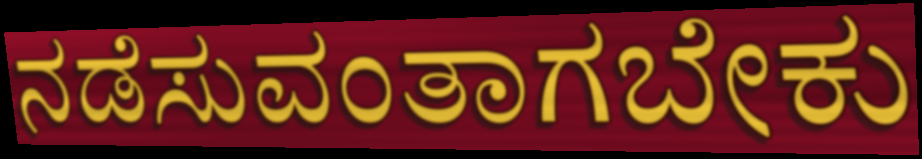
ನಡೆಸುವಂತಾಗಬೇಕು